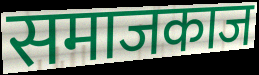
समाजकाज